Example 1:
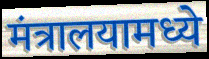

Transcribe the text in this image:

मंत्रालयामध्ये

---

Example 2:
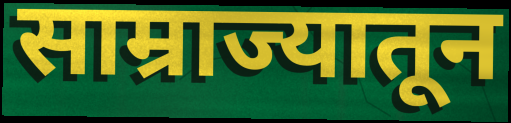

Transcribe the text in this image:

साम्राज्यातून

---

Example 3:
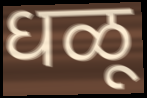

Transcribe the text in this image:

धळू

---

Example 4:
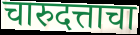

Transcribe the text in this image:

चारुदत्ताचा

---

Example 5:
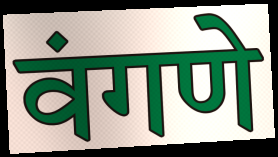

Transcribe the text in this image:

वंगणे